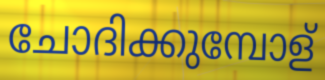
ചോദിക്കുമ്പോള്